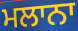
ਮਲਾਨਾ